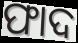
ଫାଦ